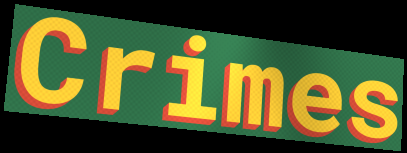
Crimes